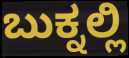
ಬುಕ್ನಲ್ಲಿ